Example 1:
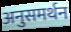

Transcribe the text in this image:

अनुसमर्थन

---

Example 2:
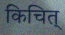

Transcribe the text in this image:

किचित्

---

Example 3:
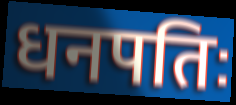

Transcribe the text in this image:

धनपतिः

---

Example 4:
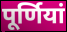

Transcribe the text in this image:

पूर्णियां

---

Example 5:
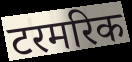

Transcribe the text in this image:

टरमरिक